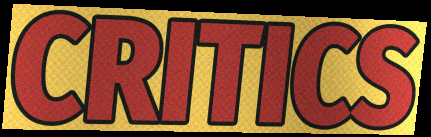
CRITICS